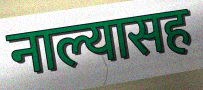
नाल्यासह